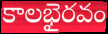
కాలభైరవం